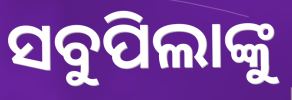
ସବୁପିଲାଙ୍କୁ